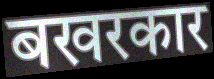
बखरकार